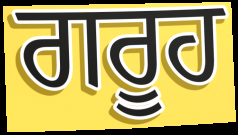
ਗਰੂਹ